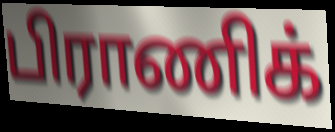
பிராணிக்